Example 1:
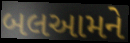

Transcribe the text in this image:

બલઆમને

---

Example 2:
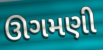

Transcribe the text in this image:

ઊગમણી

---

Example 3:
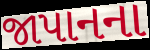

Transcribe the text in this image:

જાપાનના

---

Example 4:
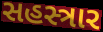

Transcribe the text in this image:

સહસ્ત્રાર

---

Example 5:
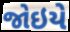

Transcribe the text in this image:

જોઇયે